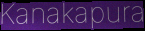
Kanakapura